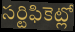
సర్టిఫికెట్లో